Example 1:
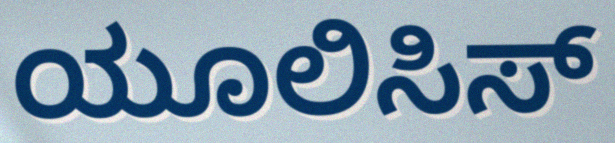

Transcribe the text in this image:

ಯೂಲಿಸಿಸ್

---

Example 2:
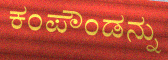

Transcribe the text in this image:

ಕಂಪೌಂಡನ್ನು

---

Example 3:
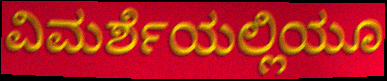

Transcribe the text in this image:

ವಿಮರ್ಶೆಯಲ್ಲಿಯೂ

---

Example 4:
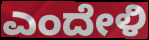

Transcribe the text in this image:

ಎಂದೇಳಿ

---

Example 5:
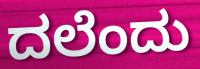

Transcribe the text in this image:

ದಲೆಂದು